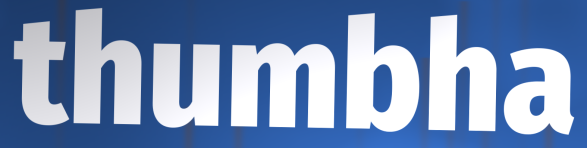
thumbha